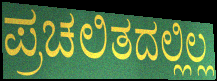
ಪ್ರಚಲಿತದಲ್ಲಿಲ್ಲ